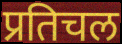
प्रतिचल